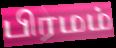
பிரமம்